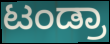
ಟಂಡ್ರಾ